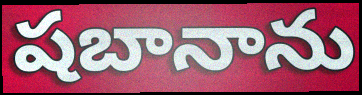
షబానాను